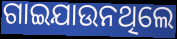
ଗାଇଯାଉନଥିଲେ